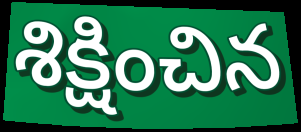
శిక్షించిన